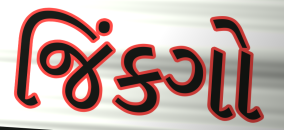
જિંકગો